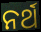
ନର୍ଥ